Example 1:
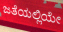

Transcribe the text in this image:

ಜತೆಯಲ್ಲಿಯೇ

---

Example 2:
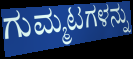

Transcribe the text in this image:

ಗುಮ್ಮಟಗಳನ್ನು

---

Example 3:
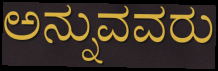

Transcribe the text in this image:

ಅನ್ನುವವರು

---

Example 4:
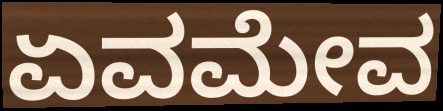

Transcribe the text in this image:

ಏವಮೇವ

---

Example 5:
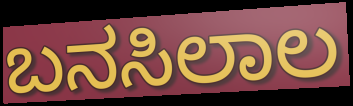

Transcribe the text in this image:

ಬನಸಿಲಾಲ